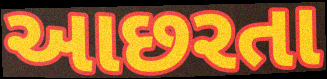
આછરતા